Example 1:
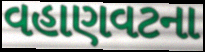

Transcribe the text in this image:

વહાણવટના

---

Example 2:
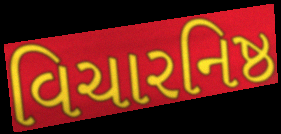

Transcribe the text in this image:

વિચારનિષ્ઠ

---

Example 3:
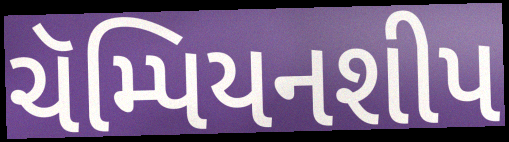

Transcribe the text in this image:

ચૅમ્પિયનશીપ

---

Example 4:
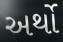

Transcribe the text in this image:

અર્થો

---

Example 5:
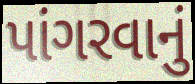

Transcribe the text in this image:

પાંગરવાનું